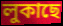
লুকাছে